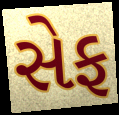
સેફ